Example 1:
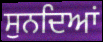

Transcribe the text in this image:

ਸੁਨਦਿਆਂ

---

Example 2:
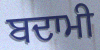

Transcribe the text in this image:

ਬਦਾਮੀ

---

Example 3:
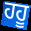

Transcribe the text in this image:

ਹਹੂ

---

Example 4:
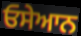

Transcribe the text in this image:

ਓਸੇਆਨ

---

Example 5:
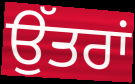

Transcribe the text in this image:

ਉੱਤਰਾਂ